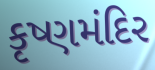
કૃષ્ણમંદિર